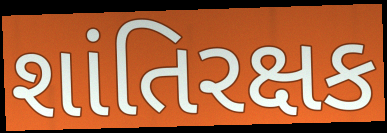
શાંતિરક્ષક